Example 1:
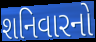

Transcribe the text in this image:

શનિવારનો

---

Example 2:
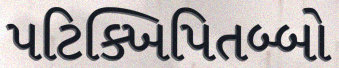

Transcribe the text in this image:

પટિક્ખિપિતબ્બો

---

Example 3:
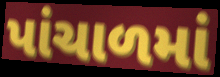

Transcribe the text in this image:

પાંચાળમાં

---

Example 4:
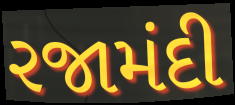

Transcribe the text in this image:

રજામંદી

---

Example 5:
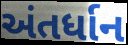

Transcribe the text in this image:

અંતર્ધાન